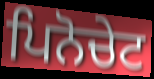
ਪਿਨੋਚੇਟ